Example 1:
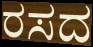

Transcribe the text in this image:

ರಸದ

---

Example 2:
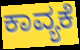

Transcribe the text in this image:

ಕಾವ್ಯಕೆ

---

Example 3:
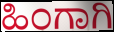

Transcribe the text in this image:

ಹಿಂಗಾಗಿ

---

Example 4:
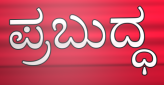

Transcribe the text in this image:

ಪ್ರಬುದ್ಧ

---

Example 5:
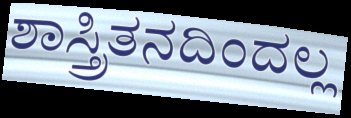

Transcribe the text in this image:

ಶಾಸ್ತ್ರಿತನದಿಂದಲ್ಲ